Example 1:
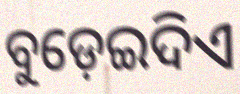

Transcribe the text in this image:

ବୁଡ଼େଇଦିଏ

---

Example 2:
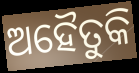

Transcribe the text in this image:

ଅହୈତୁକି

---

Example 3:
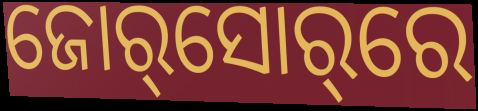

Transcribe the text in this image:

ଜୋର୍‌ସୋର୍‌ରେ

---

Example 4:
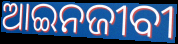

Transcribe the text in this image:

ଆଇନଜୀବୀ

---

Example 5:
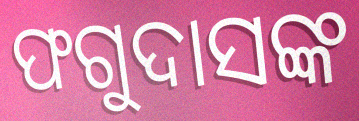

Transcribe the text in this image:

ଫଗୁଦାସଙ୍କ